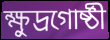
ক্ষুদ্রগোষ্ঠী